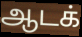
ஆடக்